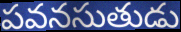
పవనసుతుడు